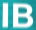
IB